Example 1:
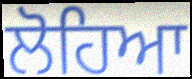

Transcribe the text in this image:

ਲੋਹਿਆ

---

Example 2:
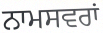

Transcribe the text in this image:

ਨਾਮਸਵਰਾਂ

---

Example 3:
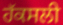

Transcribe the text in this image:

ਹੱਕਸਲੀ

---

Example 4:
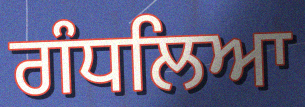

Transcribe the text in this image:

ਗੰਧਲਿਆ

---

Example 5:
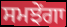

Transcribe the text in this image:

ਸਮਝੇਂਗਾ